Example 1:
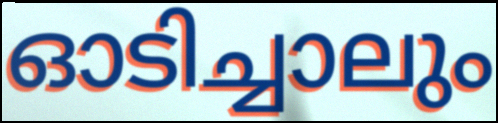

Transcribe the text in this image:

ഓടിച്ചാലും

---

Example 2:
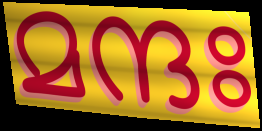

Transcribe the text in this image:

മന്ദഃ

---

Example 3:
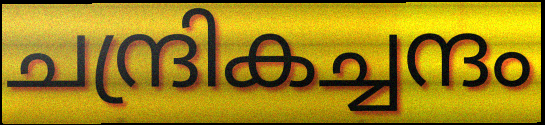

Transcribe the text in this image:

ചന്ദ്രികച്ചന്ദം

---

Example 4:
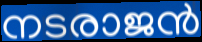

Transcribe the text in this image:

നടരാജൻ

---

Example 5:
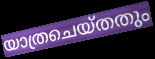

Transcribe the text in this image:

യാത്രചെയ്തതും